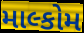
માલ્કોમ